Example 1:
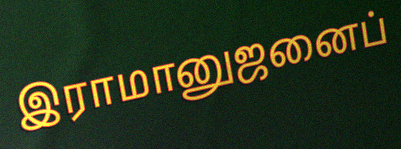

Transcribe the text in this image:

இராமானுஜனைப்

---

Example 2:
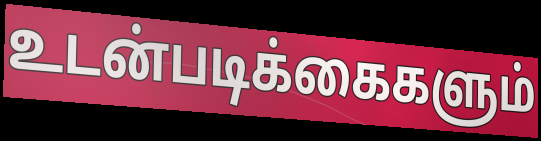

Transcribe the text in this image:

உடன்படிக்கைகளும்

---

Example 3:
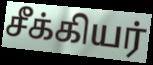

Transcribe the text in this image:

சீக்கியர்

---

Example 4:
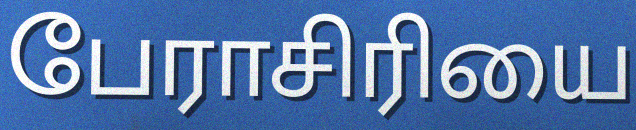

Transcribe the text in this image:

பேராசிரியை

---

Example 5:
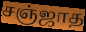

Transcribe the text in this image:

சஞ்ஜாத